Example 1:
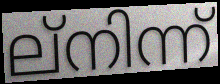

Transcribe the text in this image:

ല്നിന്ന്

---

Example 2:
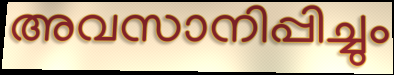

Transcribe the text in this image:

അവസാനിപ്പിച്ചും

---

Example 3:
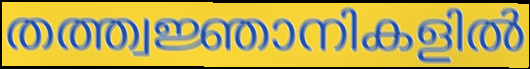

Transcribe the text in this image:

തത്ത്വജ്ഞാനികളിൽ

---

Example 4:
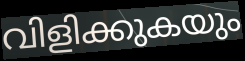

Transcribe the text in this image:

വിളിക്കുകയും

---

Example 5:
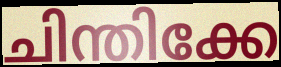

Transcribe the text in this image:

ചിന്തിക്കേ